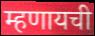
म्हणायची